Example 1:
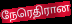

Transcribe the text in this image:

நேரெதிரான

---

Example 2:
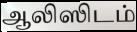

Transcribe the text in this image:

ஆலிஸிடம்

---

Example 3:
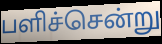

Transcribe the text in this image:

பளிச்சென்று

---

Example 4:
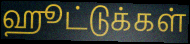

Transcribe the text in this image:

ஹூட்டுக்கள்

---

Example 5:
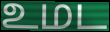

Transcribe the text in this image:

உமட